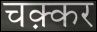
चक़्कर